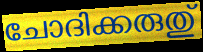
ചോദിക്കരുതു്